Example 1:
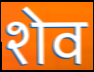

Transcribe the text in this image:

शेव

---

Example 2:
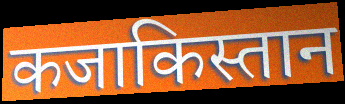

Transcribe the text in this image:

कजाकिस्तान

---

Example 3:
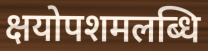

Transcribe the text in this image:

क्षयोपशमलब्धि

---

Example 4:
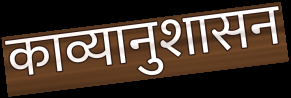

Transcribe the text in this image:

काव्यानुशासन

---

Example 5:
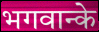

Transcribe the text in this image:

भगवान्के